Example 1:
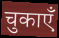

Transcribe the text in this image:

चुकाएँ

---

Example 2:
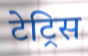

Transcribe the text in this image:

टेट्रिस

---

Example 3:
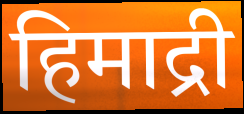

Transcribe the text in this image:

हिमाद्री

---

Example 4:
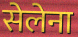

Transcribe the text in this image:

सेलेना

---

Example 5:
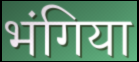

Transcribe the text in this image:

भंगिया